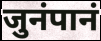
जुनंपानं